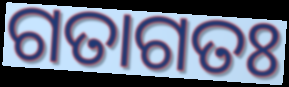
ଗତାଗତଃ